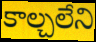
కాల్చలేని